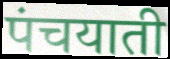
पंचयाती